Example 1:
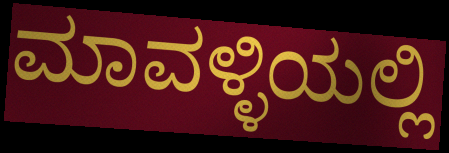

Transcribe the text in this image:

ಮಾವಳ್ಳಿಯಲ್ಲಿ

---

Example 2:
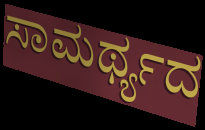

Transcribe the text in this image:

ಸಾಮರ್ಥ್ಯದ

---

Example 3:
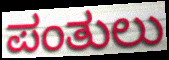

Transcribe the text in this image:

ಪಂತುಲು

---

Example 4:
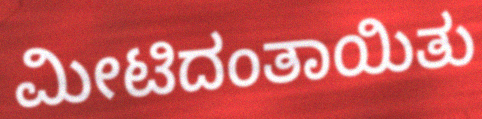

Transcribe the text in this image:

ಮೀಟಿದಂತಾಯಿತು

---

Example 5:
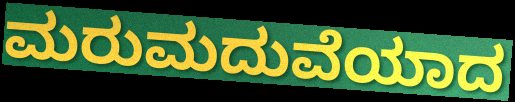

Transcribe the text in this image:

ಮರುಮದುವೆಯಾದ